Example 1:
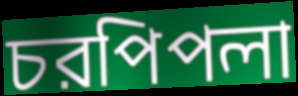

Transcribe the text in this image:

চরপিপলা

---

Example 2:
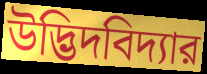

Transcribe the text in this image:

উদ্ভিদবিদ্যার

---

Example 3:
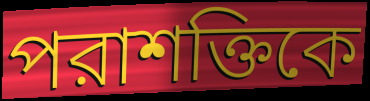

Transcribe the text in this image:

পরাশক্তিকে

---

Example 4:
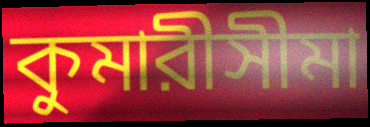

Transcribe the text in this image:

কুমারীসীমা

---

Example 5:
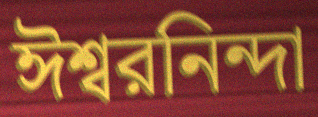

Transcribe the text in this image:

ঈশ্বরনিন্দা